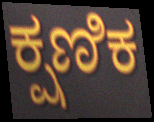
ಕ್ಷಣಿಕ